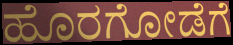
ಹೊರಗೋಡೆಗೆ